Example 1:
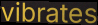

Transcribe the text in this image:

vibrates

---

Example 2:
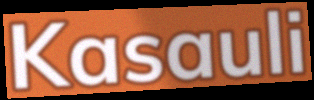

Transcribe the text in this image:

Kasauli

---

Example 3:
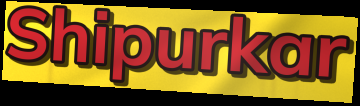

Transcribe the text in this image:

Shipurkar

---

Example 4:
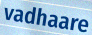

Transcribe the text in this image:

vadhaare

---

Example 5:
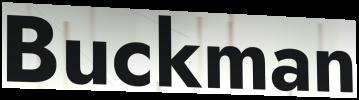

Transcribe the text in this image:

Buckman